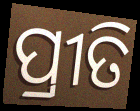
ପ୍ରୀତି